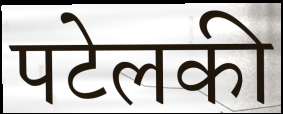
पटेलकी